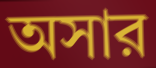
অসার